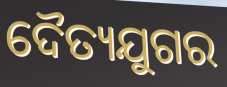
ଦୈତ୍ୟଯୁଗର